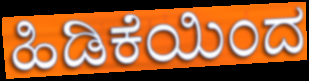
ಹಿಡಿಕೆಯಿಂದ